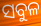
ସବୁଳ